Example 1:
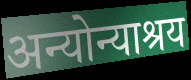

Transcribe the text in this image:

अन्योन्याश्रय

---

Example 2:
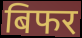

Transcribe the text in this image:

बिफर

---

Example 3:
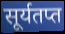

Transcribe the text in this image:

सूर्यतप्त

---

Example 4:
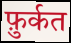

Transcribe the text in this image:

फ़ुर्कत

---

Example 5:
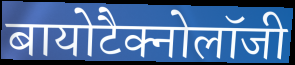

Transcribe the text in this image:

बायोटैक्नोलॉजी